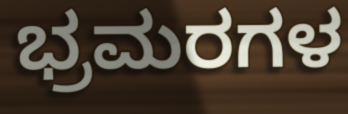
ಭ್ರಮರಗಳ